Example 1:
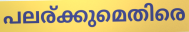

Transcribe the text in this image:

പലര്ക്കുമെതിരെ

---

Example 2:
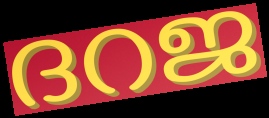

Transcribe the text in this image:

ദറജ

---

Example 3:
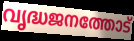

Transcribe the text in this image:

വൃദ്ധജനത്തോട്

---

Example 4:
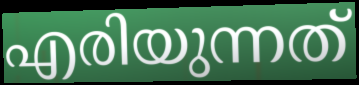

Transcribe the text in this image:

എരിയുന്നത്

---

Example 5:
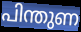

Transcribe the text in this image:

പിന്തുണ